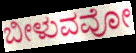
ಬೀಳುವವೋ